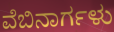
ವೆಬಿನಾರ್ಗಳು